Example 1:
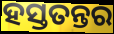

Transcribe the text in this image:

ହସ୍ତତନ୍ତର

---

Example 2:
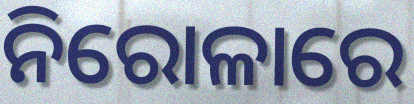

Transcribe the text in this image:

ନିରୋଳାରେ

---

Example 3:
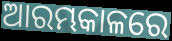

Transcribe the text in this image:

ଆରମ୍ଭକାଳରେ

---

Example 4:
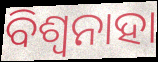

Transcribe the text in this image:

ବିଶ୍ଵନାହା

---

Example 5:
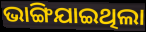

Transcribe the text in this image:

ଭାଙ୍ଗିଯାଇଥିଲା